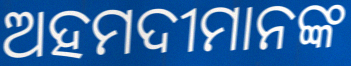
ଅହମଦୀମାନଙ୍କ